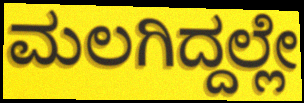
ಮಲಗಿದ್ದಲ್ಲೇ